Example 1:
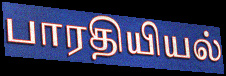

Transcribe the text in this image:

பாரதியியல்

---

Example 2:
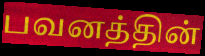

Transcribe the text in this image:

பவனத்தின்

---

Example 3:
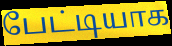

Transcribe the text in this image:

பேட்டியாக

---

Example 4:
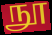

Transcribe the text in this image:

நூ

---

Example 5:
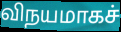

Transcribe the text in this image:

விநயமாகச்